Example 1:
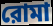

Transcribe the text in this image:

রোমা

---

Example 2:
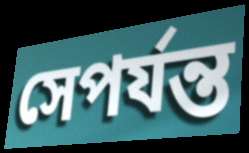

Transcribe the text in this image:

সেপর্যন্ত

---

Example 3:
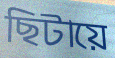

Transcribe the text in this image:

ছিটায়ে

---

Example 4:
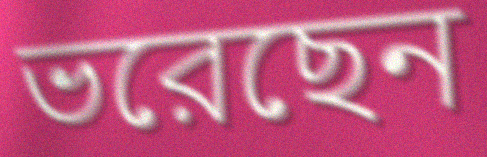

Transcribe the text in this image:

ভরেছেন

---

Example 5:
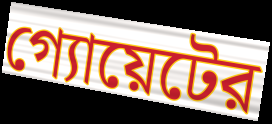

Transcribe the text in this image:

গ্যোয়েটের